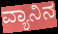
ವ್ಯಾನಿನ